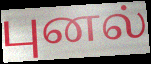
புனல்